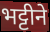
भट्टीने